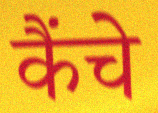
कैंचे